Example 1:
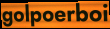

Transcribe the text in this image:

golpoerboi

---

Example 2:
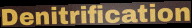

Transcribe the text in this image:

Denitrification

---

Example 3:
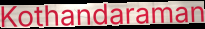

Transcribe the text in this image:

Kothandaraman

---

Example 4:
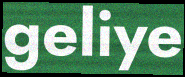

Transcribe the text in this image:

geliye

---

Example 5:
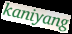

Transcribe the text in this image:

kaniyang